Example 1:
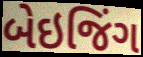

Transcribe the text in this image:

બેઇજિંગ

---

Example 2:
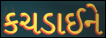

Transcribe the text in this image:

કચડાઈને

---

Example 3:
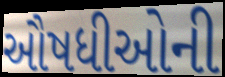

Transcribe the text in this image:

ઔષધીઓની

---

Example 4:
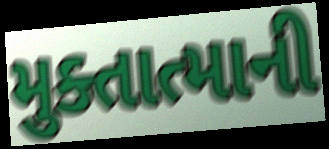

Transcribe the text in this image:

મુક્તાત્માની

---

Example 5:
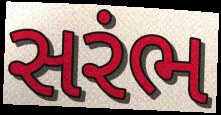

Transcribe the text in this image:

સરંભ